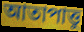
আতাপাত্তু